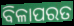
ବିଳାପରତ